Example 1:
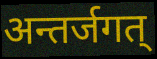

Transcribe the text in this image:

अन्तर्जगत्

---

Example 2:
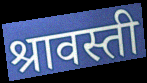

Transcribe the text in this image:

श्रावस्ती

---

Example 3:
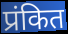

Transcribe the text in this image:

प्रंकित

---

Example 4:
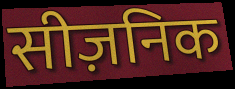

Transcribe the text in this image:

सीज़निक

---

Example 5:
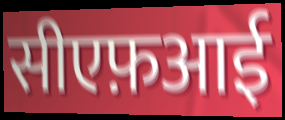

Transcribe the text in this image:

सीएफ़आई